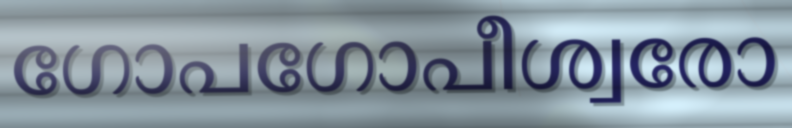
ഗോപഗോപീശ്വരോ